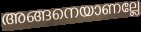
അങ്ങനെയാണല്ലേ